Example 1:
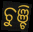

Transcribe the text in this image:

ଚୁଞ୍ଚି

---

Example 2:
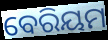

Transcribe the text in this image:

ବେରିୟମ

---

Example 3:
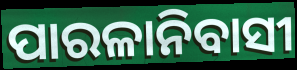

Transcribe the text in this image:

ପାରଳାନିବାସୀ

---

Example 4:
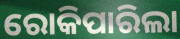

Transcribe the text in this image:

ରୋକିପାରିଲା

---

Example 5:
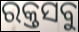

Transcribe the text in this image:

ରକ୍ତସବୁ